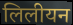
लिलीयन